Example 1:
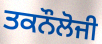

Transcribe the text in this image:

ਤਕਨੌਲੋਜੀ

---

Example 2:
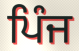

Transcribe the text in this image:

ਪਿੰਜ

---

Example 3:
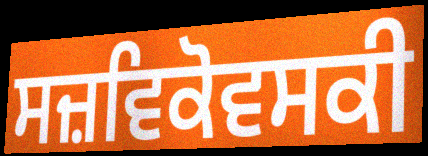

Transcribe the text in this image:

ਸਜ਼ਵਿਕੋਵਸਕੀ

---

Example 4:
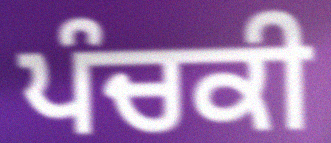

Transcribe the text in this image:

ਪੰਚਕੀ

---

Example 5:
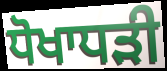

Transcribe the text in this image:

ਧੋਖਾਧਡ਼ੀ